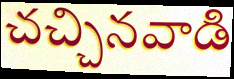
చచ్చినవాడి